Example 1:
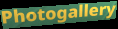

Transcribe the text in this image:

Photogallery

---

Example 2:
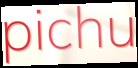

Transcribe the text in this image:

pichu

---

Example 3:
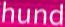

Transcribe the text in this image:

hund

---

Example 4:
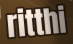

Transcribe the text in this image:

ritthi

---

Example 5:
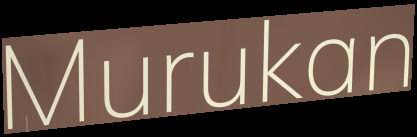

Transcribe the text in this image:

Murukan